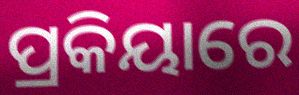
ପ୍ରକିୟାରେ